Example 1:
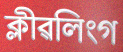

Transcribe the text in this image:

ক্লীৱলিংগ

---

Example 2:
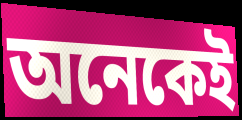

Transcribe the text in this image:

অনেকেই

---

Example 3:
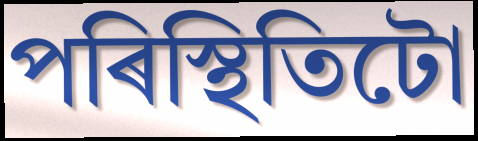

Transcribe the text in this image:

পৰিস্থিতিটো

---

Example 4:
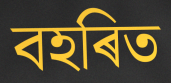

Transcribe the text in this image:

বহৰিত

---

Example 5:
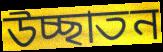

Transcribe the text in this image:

উচ্ছাতন